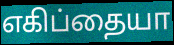
எகிப்தையா